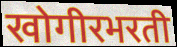
खोगीरभरती